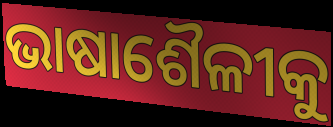
ଭାଷାଶୈଳୀକୁ